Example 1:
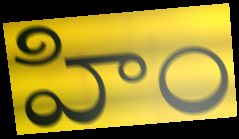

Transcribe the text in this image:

హిం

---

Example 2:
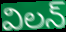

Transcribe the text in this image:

విలన్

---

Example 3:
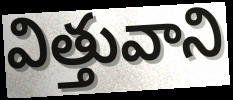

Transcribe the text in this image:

విత్తువాని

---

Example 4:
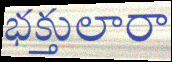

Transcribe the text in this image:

భక్తులారా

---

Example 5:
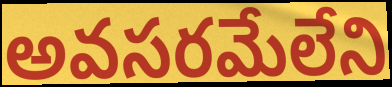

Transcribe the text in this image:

అవసరమేలేని